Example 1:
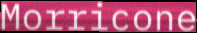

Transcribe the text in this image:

Morricone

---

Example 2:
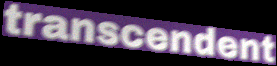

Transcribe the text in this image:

transcendent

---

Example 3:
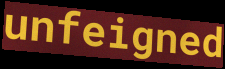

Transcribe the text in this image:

unfeigned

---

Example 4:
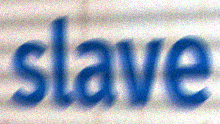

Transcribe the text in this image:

slave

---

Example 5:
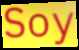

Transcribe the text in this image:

Soy